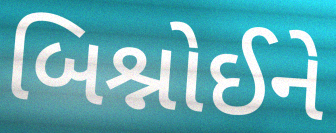
બિશ્નોઈને